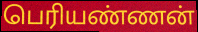
பெரியண்ணன்